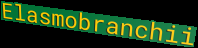
Elasmobranchii